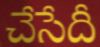
చేసేదీ